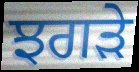
ਝਗਡ਼ੇ